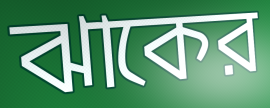
ঝাকের